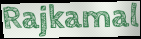
Rajkamal